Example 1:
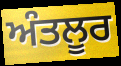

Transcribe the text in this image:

ਅੰਤਲੂਰ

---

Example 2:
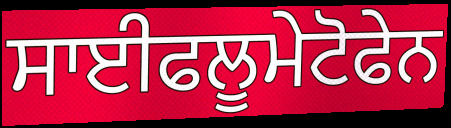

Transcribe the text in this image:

ਸਾਈਫਲੂਮੇਟੋਫੇਨ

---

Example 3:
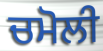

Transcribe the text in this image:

ਚਮੋਲੀ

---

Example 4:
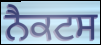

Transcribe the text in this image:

ਨੈਕਟਸ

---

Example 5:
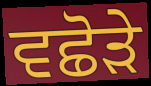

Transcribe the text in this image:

ਵਛੋੜੇ